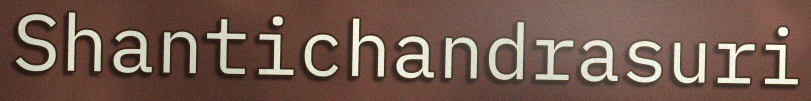
Shantichandrasuri